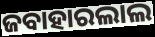
ଜବାହାରଲାଲ